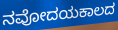
ನವೋದಯಕಾಲದ